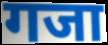
गजा